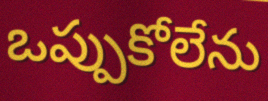
ఒప్పుకోలేను